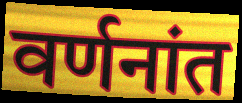
वर्णनांत